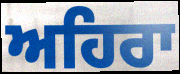
ਅਹਿਰਾ